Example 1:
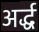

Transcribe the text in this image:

अर्द्ध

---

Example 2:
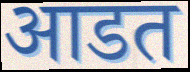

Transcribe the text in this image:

आडत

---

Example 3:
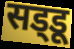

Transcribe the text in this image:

सड्‌डू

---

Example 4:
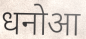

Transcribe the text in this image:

धनोआ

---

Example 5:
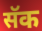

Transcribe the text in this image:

सॅक